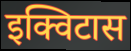
इक्विटास